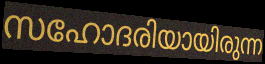
സഹോദരിയായിരുന്ന